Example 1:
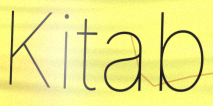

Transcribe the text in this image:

Kitab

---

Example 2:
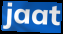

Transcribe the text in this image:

jaat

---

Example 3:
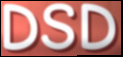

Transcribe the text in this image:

DSD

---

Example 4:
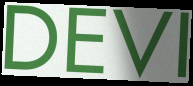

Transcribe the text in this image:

DEVI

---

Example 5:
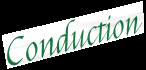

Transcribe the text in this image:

Conduction